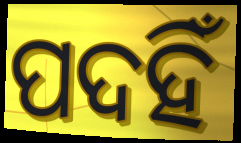
ପଦହିଁ